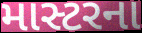
માસ્ટરના